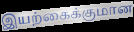
இயற்கைக்குமான